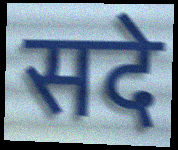
सदे